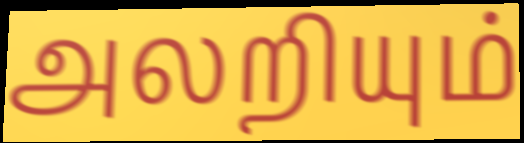
அலறியும்